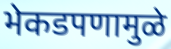
भेकडपणामुळे